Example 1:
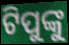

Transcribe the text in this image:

ଟିପୁଙ୍କୁ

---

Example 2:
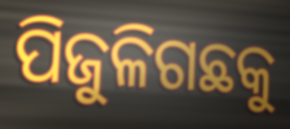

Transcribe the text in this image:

ପିଜୁଳିଗଛକୁ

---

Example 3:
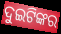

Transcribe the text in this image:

ଦୁଇଟିଙ୍କର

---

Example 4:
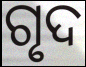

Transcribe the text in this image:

ଗୃଦ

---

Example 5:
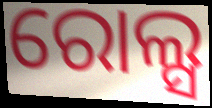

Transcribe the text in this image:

ରୋଲ୍ସ